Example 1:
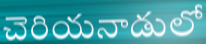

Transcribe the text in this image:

చెరియనాడులో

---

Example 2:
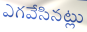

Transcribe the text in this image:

ఎగవేసినట్లు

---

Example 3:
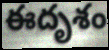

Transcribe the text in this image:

ఈదృశం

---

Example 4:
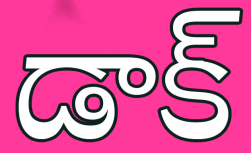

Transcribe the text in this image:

డాక్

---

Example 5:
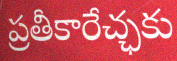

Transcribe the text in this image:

ప్రతీకారేచ్ఛకు